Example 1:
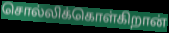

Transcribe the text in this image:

சொல்லிக்கொள்கிறான்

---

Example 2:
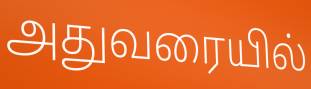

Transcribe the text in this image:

அதுவரையில்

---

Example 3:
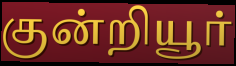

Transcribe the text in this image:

குன்றியூர்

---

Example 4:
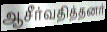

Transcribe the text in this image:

ஆசீர்வதித்தனர்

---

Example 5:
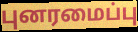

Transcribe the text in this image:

புனரமைப்பு